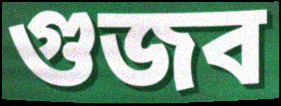
গুজব